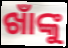
ଖାଁଙ୍କୁ